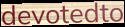
devotedto